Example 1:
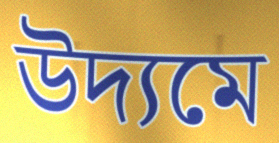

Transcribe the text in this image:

উদ্যমে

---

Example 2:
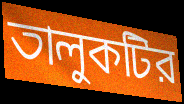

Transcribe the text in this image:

তালুকটির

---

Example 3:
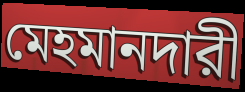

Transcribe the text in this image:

মেহমানদারী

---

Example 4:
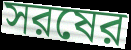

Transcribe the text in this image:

সরষের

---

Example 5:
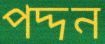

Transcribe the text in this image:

পদ্দন